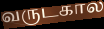
வருடகால